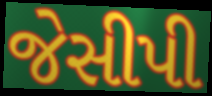
જેસીપી